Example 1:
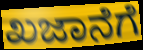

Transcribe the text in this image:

ಖಜಾನೆಗೆ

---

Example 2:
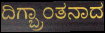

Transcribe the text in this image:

ದಿಗ್ಬ್ರಾಂತನಾದ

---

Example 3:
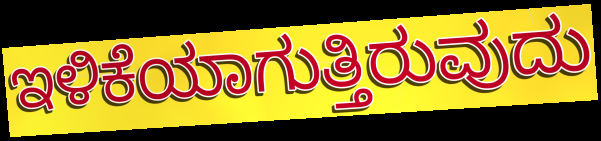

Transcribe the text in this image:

ಇಳಿಕೆಯಾಗುತ್ತಿರುವುದು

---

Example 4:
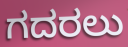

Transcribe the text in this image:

ಗದರಲು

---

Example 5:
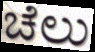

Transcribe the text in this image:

ಚೆಲು